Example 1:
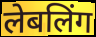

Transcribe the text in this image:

लेबलिंग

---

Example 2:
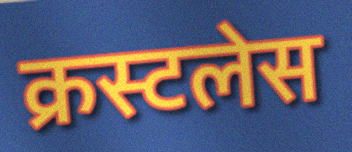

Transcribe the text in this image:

क्रस्टलेस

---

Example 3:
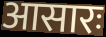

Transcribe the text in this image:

आसारः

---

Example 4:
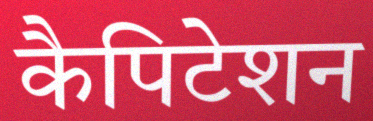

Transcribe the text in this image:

कैपिटेशन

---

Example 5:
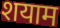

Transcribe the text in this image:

शयाम